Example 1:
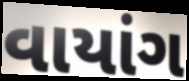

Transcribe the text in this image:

વાયાંગ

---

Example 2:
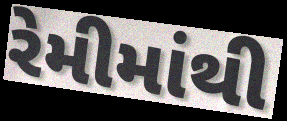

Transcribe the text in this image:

રેમીમાંથી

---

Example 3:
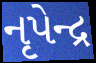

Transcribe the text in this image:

નૃપેન્દ્ર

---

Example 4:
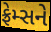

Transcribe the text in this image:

ફ્રેમ્સને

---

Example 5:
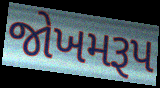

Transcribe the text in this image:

જોખમરૂપ